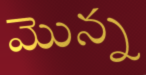
మొన్న